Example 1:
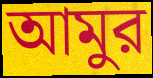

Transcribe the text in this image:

আমুর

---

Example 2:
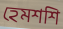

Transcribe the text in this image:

হেমশশি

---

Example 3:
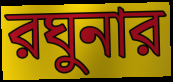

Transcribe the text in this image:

রঘুনার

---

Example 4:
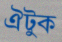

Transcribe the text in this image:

ঐটুক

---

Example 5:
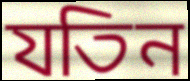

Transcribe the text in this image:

যতিন